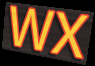
WX